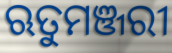
ଋତୁମଞ୍ଜରୀ